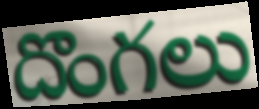
దొంగలు